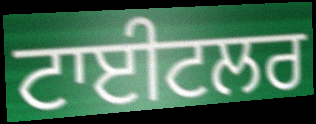
ਟਾਈਟਲਰ